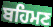
ਬਹਿਮਣ